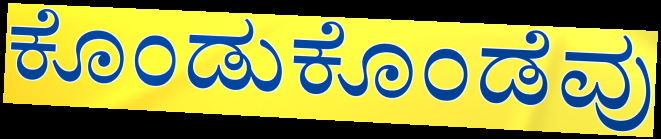
ಕೊಂಡುಕೊಂಡೆವು